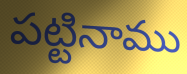
పట్టినాము